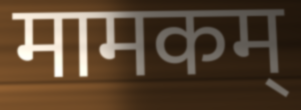
मामकम्